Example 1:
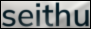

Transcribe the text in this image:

seithu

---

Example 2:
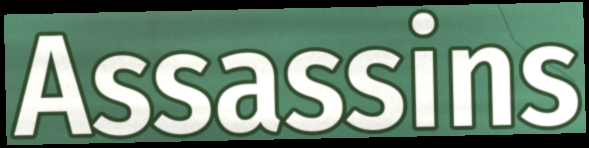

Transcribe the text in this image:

Assassins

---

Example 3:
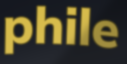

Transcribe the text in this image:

phile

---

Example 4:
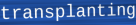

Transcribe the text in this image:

transplanting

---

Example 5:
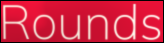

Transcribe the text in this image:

Rounds